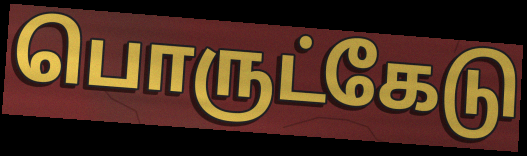
பொருட்கேடு